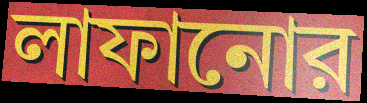
লাফানোর